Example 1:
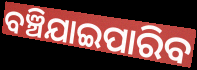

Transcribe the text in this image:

ବଞ୍ଚିଯାଇପାରିବ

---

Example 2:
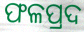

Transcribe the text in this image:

ଫଳପ୍ରଦ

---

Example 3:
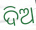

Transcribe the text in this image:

ଦିଅ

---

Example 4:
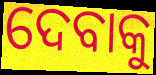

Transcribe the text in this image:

ଦେବାକୁ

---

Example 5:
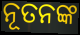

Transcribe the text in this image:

ନୂତନଙ୍କ